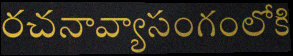
రచనావ్యాసంగంలోకి